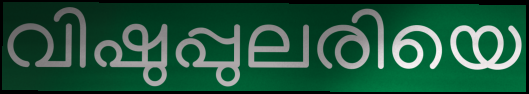
വിഷുപ്പുലരിയെ